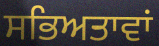
ਸਭਿਅਤਾਵਾਂ